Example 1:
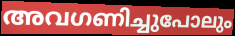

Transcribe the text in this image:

അവഗണിച്ചുപോലും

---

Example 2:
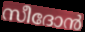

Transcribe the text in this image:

സീദോൻ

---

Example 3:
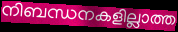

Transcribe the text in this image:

നിബന്ധനകളില്ലാത്ത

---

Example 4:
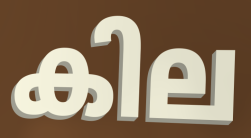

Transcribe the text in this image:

കില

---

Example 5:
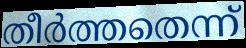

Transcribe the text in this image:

തീർത്തതെന്ന്